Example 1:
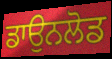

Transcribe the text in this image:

ਡਾਉਨਲੋਡ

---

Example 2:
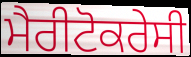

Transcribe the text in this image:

ਮੈਰੀਟੋਕਰੇਸੀ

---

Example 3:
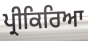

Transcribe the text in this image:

ਪ੍ਰੀਕਿਰਿਆ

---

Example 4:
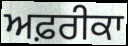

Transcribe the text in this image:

ਅਫ਼ਰੀਕਾ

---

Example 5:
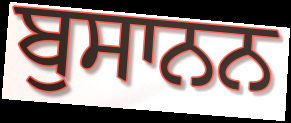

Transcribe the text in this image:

ਬੁਸਾਨਨ